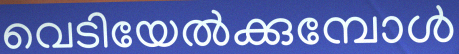
വെടിയേൽക്കുമ്പോൾ